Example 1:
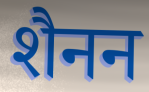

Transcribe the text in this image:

शैनन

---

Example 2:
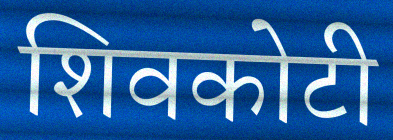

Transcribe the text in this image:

शिवकोटी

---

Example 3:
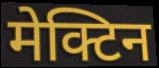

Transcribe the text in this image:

मेक्टिन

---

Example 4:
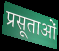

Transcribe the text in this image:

प्रसूताओं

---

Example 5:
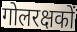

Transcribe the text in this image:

गोलरक्षकों